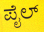
ಪೈಲ್